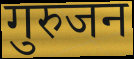
गुरुजन